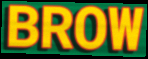
BROW